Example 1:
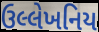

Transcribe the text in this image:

ઉલ્લેખનિય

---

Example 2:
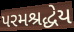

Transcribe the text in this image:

પરમશ્રદ્ધેય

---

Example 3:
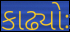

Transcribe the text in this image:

કાઢ્યોઃ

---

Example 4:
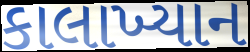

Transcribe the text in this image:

કાલાખ્યાન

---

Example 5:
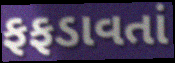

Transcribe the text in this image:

ફફડાવતાં